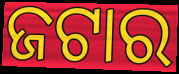
ଜଟାର